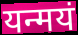
यन्मयं